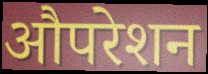
औपरेशन